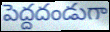
పెద్దదండుగా